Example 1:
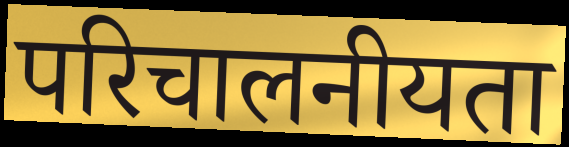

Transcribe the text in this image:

परिचालनीयता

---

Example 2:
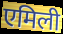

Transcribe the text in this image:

एमिली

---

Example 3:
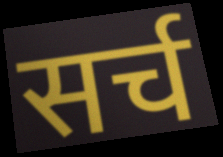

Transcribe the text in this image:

सर्च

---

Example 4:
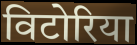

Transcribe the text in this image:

विटोरिया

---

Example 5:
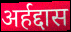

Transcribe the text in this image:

अर्हद्दास